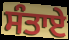
ਸੰਤਾਏ